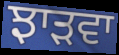
ਝਾੜਵਾ